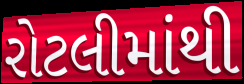
રોટલીમાંથી